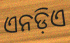
ଏନଡ଼ିଏ